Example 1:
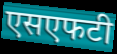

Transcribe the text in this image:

एसएफटी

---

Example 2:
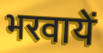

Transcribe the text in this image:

भरवायें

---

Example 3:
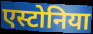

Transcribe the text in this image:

एस्टोनिया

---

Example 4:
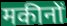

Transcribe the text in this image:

मकीनों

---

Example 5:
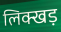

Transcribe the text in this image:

लिक्खड़